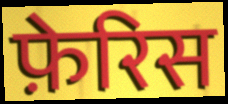
फ़ेरिस